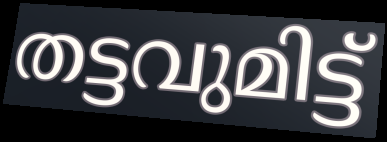
തട്ടവുമിട്ട്